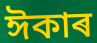
ঈকাৰ